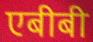
एबीबी